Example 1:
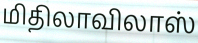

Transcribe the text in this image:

மிதிலாவிலாஸ்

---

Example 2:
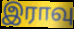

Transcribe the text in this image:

இராவு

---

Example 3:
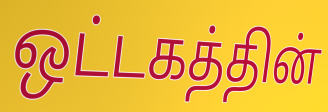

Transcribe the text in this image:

ஒட்டகத்தின்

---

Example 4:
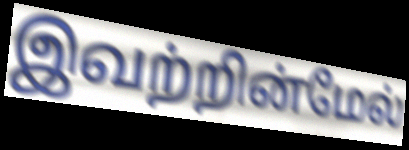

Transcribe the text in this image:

இவற்றின்மேல்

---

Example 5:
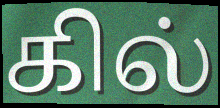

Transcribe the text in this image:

கில்